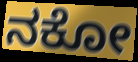
ನಕೋ